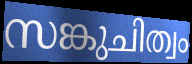
സങ്കുചിത്വം